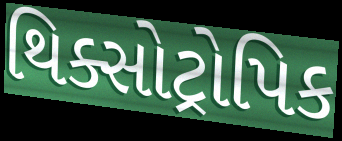
થિક્સોટ્રોપિક